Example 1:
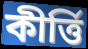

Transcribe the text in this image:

কীৰ্ত্তি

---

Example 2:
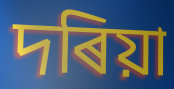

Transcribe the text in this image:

দৰিয়া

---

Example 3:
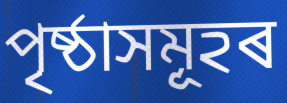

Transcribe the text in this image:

পৃষ্ঠাসমূহৰ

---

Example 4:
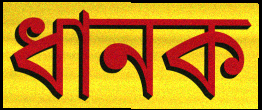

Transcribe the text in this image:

ধানক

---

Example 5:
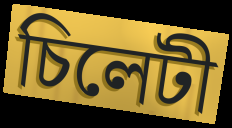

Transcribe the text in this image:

চিলেটী